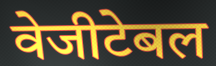
वेजीटेबल